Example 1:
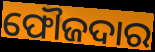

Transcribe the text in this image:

ଫୌଜଦାର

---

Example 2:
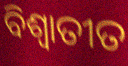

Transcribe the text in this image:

ବିଶ୍ୱାତୀତ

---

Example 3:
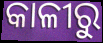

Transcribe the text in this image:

କାଳୀରୁ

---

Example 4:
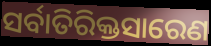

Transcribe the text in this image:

ସର୍ବାତିରିକ୍ତସାରେଣ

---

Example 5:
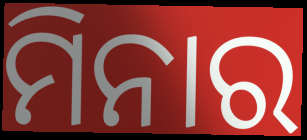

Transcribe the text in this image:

ମିନାର